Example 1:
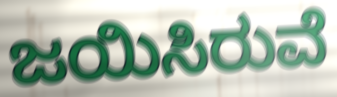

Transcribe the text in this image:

ಜಯಿಸಿರುವೆ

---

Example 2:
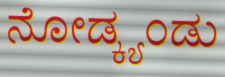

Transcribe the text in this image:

ನೋಡ್ಕ್ಯಂಡು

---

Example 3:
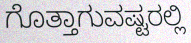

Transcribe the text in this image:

ಗೊತ್ತಾಗುವಷ್ಟರಲ್ಲಿ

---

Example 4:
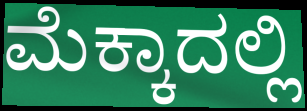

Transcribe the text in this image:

ಮೆಕ್ಕಾದಲ್ಲಿ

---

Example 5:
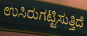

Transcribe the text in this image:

ಉಸಿರುಗಟ್ಟಿಸುತ್ತಿದೆ